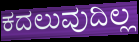
ಕದಲುವುದಿಲ್ಲ